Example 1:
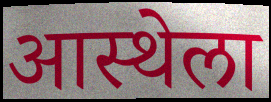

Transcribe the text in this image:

आस्थेला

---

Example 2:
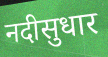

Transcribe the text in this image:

नदीसुधार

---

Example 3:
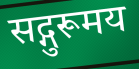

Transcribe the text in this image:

सद्गुरूमय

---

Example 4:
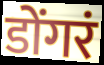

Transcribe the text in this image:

डोंगरं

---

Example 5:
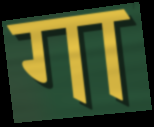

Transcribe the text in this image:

गा